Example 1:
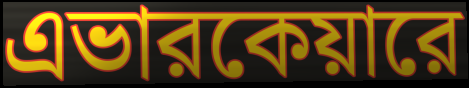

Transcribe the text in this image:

এভারকেয়ারে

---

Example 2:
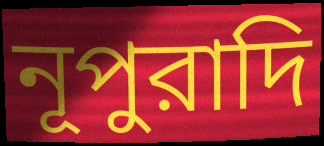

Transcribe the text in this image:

নূপুরাদি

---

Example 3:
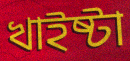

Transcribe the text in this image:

খাইষ্টা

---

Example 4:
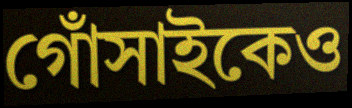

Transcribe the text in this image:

গোঁসাইকেও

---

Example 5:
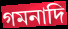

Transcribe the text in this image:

গমনাদি